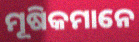
ମୂଷିକମାନେ